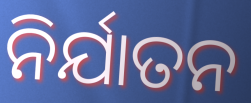
ନିର୍ଯାତନ